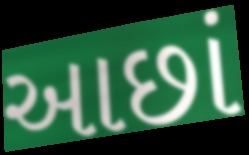
આછાં